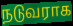
நடுவராக